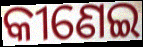
କୀଣେଇ